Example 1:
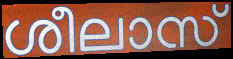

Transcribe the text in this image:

ശീലാസ്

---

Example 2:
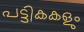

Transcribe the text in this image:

പട്ടികകളും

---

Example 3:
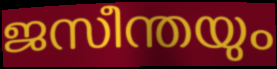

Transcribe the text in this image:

ജസീന്തയും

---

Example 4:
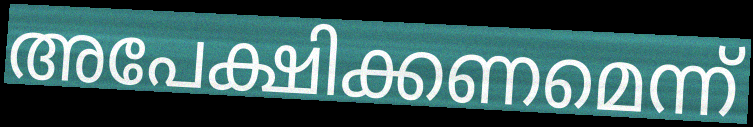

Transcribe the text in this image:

അപേക്ഷിക്കണമെന്ന്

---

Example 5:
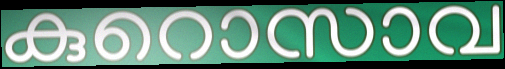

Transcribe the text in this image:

കുറൊസാവ